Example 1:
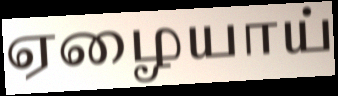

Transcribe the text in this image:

ஏழையாய்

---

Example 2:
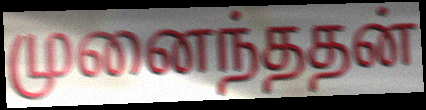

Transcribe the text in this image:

முனைந்ததன்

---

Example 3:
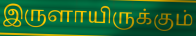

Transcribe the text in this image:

இருளாயிருக்கும்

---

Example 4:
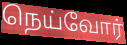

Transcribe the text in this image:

நெய்வோர்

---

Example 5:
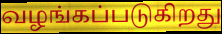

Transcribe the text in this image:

வழங்கப்படுகிறது